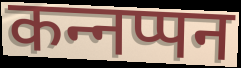
कन्नप्पन